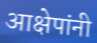
आक्षेपांनी